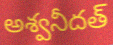
అశ్వనీదత్